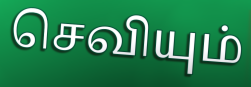
செவியும்